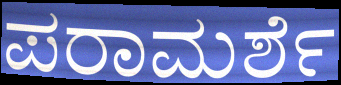
ಪರಾಮರ್ಶೆ